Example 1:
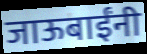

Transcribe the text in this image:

जाऊबाईंनी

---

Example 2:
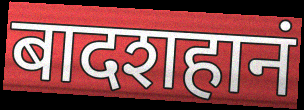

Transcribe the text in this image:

बादशहानं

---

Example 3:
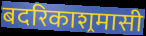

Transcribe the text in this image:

बदरिकाश्रमासी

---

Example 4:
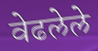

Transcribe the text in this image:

वेढलेले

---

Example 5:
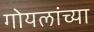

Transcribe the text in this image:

गोयलांच्या